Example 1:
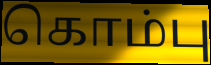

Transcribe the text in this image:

கொம்பு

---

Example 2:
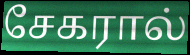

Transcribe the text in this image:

சேகரால்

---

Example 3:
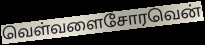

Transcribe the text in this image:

வெள்வளைசோரவென்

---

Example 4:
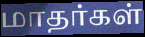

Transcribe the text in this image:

மாதர்கள்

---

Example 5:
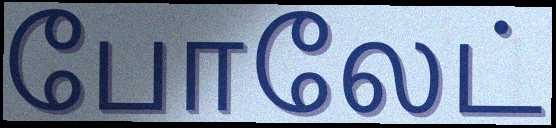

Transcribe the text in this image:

போலேட்